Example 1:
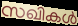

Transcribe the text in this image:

സഖികൾ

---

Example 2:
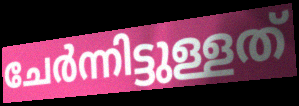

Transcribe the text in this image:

ചേർന്നിട്ടുള്ളത്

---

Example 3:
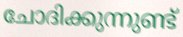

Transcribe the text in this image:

ചോദിക്കുന്നുണ്ട്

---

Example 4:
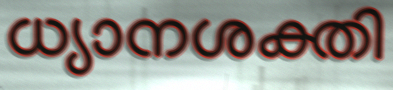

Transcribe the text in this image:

ധ്യാനശക്തി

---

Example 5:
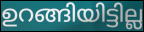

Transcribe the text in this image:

ഉറങ്ങിയിട്ടില്ല